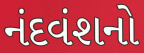
નંદવંશનો